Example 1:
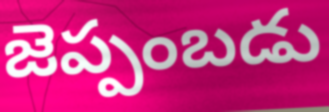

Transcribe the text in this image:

జెప్పంబడు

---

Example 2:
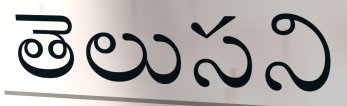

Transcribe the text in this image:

తెలుసని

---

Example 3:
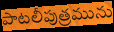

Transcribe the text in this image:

పాటలీపుత్రమును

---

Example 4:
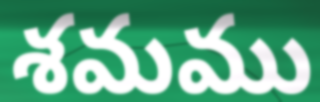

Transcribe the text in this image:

శమము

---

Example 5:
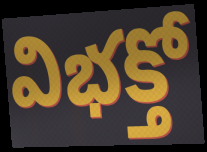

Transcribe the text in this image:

విభక్తో